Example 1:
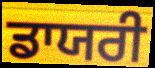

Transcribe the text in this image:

ਡਾਯਰੀ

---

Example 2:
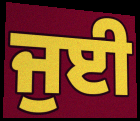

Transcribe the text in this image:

ਜੁਈ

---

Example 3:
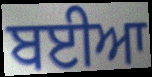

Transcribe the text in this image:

ਬਈਆ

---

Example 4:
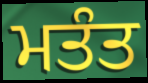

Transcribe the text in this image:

ਮਤੰਤ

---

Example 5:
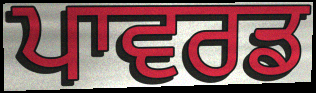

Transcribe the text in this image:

ਪਾਵਰਡ